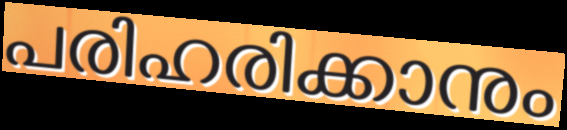
പരിഹരിക്കാനും